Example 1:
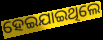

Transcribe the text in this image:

ହେଇଯାଇଥିଲେ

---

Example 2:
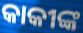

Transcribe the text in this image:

କାକୀଙ୍କ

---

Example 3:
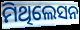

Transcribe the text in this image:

ମିଥିଲେସନ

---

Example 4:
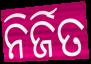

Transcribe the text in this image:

ନିର୍ଜିତ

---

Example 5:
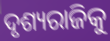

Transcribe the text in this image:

ଦୃଶ୍ୟରାଜିକୁ